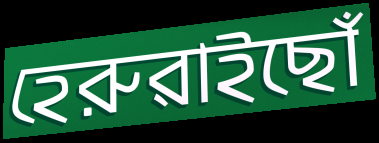
হেৰুৱাইছোঁ